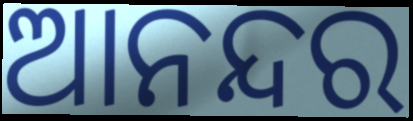
ଆନନ୍ଦର